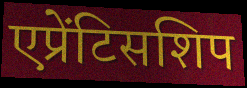
एप्रेंटिसशिप